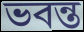
ভবন্ত